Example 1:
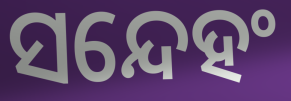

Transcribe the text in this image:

ସନ୍ଦେହଂ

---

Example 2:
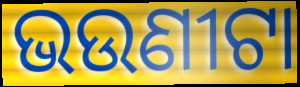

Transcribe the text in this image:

ଭଉଣୀଟା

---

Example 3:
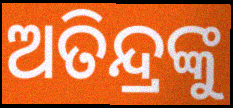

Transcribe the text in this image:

ଅତିନ୍ଦ୍ରଙ୍କୁ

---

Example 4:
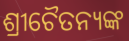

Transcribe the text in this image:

ଶ୍ରୀଚୈତନ୍ୟଙ୍କ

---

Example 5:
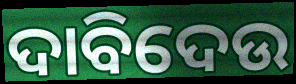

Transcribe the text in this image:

ଦାବିଦେଉ